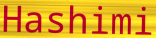
Hashimi